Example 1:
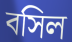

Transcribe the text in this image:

বসিল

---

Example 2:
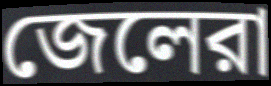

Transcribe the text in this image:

জেলেরা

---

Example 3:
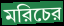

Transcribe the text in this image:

মরিচের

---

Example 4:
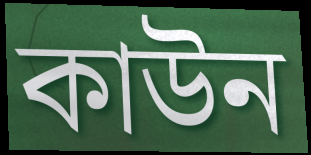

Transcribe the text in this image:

কাউন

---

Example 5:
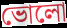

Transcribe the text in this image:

ভোলো